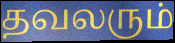
தவலரும்